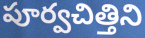
పూర్వచిత్తిని